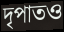
দৃপাতও